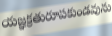
యజ్ఞక్రతురూపకుండవును